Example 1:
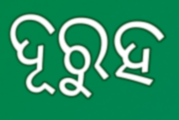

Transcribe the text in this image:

ଦୂରୁହ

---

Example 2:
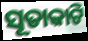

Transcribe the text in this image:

ସୂତାକାଟି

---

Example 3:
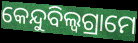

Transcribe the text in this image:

କେନ୍ଦୁବିଲ୍ଵଗ୍ରାମେ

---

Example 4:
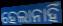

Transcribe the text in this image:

ହେଲାନାହିଁ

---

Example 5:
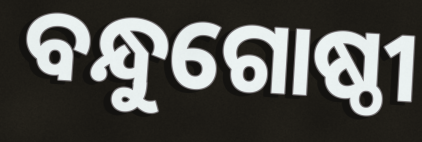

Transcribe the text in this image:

ବନ୍ଧୁଗୋଷ୍ଠୀ